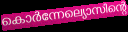
കൊർന്നേല്യൊസിന്റെ